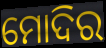
ମୋଦିର